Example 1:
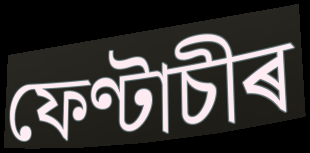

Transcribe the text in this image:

ফেণ্টাচীৰ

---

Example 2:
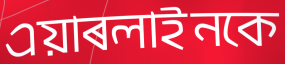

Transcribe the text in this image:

এয়াৰলাইনকে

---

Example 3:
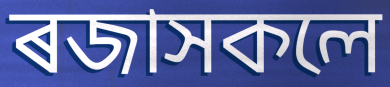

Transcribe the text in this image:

ৰজাসকলে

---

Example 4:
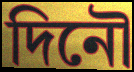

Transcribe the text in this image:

দিনৌ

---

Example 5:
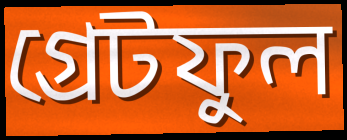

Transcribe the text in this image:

গ্ৰেটফুল